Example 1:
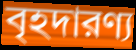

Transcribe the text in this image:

বৃহদারণ্য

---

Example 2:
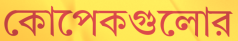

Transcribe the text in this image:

কোপেকগুলোর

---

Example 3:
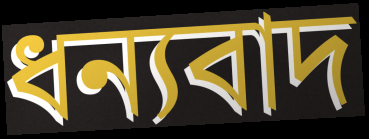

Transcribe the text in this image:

ধন্যবাদ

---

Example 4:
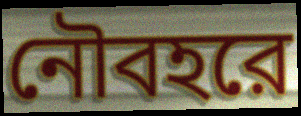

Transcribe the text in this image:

নৌবহরে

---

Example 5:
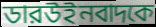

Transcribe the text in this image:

ডারউইনবাদকে